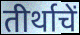
तीर्थाचें